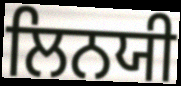
ਲਿਨਯੀ